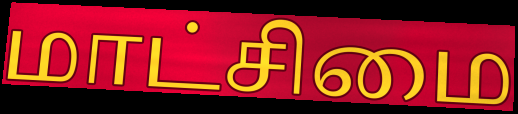
மாட்சிமை